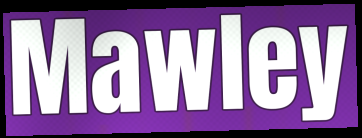
Mawley